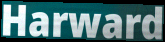
Harward